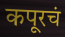
कपूरचं